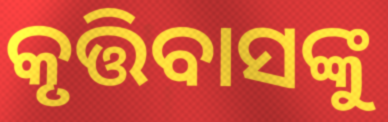
କୃତ୍ତିବାସଙ୍କୁ